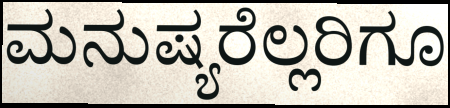
ಮನುಷ್ಯರೆಲ್ಲರಿಗೂ